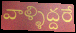
వాళ్ళిద్దరే